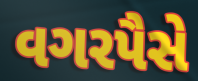
વગરપૈસે